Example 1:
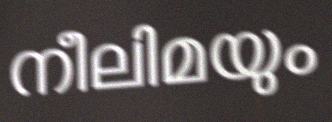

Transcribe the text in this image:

നീലിമയും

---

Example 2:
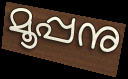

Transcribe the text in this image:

മൂപ്പനു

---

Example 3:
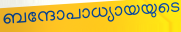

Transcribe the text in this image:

ബന്ദോപാധ്യായയുടെ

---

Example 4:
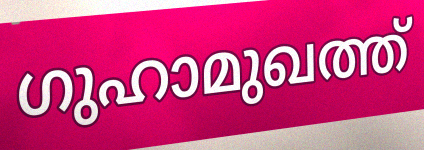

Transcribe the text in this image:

ഗുഹാമുഖത്ത്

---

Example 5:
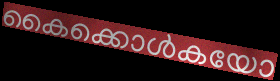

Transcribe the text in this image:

കൈക്കൊൾകയോ